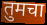
तुमचा